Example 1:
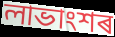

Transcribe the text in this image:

লাভাংশৰ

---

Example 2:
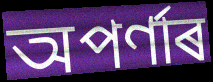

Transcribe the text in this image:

অপৰ্ণাৰ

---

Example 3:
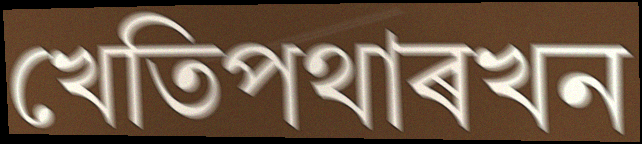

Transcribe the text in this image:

খেতিপথাৰখন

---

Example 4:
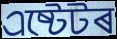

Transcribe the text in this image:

এষ্টেটৰ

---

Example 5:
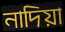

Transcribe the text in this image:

নাদিয়া